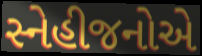
સ્નેહીજનોએ